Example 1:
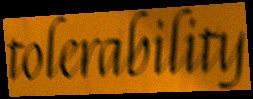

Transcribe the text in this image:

tolerability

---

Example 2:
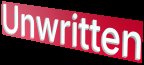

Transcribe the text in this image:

Unwritten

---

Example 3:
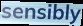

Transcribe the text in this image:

sensibly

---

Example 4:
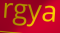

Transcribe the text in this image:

rgya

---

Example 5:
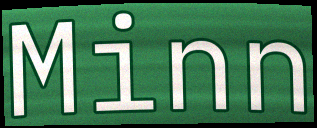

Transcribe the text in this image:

Minn